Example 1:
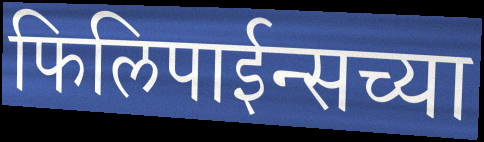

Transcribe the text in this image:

फिलिपाईन्सच्या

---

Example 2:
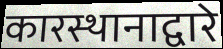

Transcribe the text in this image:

कारस्थानाद्वारे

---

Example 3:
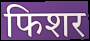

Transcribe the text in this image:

फिशर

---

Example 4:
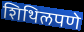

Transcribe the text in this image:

शिथिलपणे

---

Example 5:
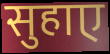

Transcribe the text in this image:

सुहाए